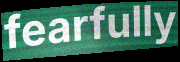
fearfully